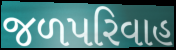
જળપરિવાહ